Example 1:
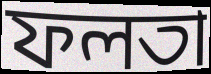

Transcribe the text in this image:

ফলতা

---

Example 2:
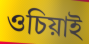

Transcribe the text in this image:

ওচিয়াই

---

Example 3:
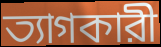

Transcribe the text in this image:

ত্যাগকারী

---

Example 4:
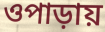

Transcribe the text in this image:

ওপাড়ায়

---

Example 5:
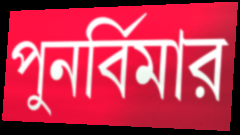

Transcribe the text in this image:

পুনর্বিমার